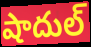
షాదుల్